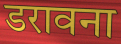
डरावना